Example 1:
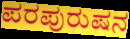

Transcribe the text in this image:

ಪರಪುರುಷನ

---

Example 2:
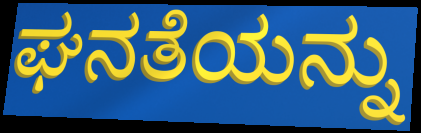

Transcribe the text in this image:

ಘನತೆಯನ್ನು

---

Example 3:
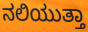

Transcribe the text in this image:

ನಲಿಯುತ್ತಾ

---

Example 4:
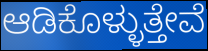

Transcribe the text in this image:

ಆಡಿಕೊಳ್ಳುತ್ತೇವೆ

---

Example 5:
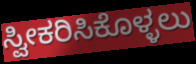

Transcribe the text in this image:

ಸ್ವೀಕರಿಸಿಕೊಳ್ಳಲು